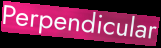
Perpendicular